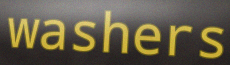
washers